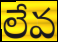
లేవ